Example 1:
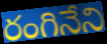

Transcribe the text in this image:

రంగినేని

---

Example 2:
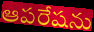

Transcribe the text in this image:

ఆపరేషను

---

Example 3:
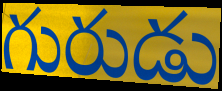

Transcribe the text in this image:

గురుడు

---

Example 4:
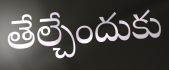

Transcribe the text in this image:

తేల్చేందుకు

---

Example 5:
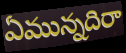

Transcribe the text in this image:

ఏమున్నదిరా